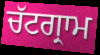
ਚੱਟਗ੍ਰਾਮ